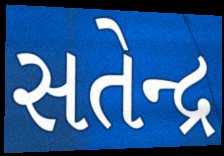
સતેન્દ્ર